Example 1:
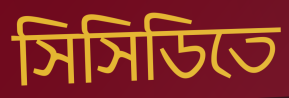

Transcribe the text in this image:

সিসিডিতে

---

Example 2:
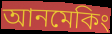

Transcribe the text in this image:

আনমেকিং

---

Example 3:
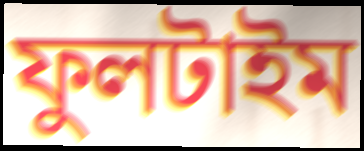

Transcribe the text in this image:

ফুলটাইম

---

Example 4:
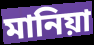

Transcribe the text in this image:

মানিয়া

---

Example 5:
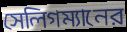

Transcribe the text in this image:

সেলিগম্যানের